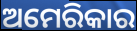
ଅମେରିକାର